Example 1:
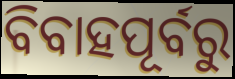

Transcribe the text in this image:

ବିବାହପୂର୍ବରୁ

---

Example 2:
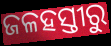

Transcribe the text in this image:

ଜଳହସ୍ତୀରୁ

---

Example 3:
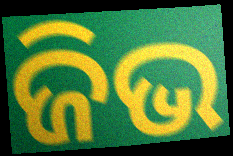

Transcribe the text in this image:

ଜିଭ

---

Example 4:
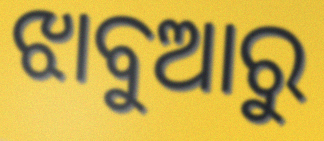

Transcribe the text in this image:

ଝାବୁଆରୁ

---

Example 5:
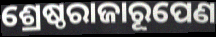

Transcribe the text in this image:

ଶ୍ରେଷ୍ଠରାଜାରୂପେଣ